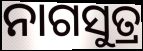
ନାଗସୁତ୍ର